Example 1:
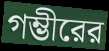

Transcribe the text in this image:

গম্ভীরের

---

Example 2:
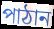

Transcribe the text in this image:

পাঠান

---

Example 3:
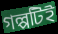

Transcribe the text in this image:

গল্পটিই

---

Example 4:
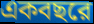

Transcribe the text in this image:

একবছরে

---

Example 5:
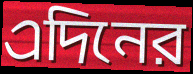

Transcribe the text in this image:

এদিনের